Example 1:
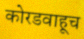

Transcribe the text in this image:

कोरडवाहूच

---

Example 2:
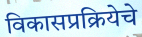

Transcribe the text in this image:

विकासप्रक्रियेचे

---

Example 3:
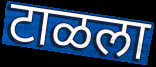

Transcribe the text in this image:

टाळला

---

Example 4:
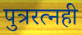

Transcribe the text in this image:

पुत्ररत्नही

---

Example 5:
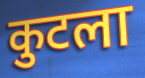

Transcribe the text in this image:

कुटला